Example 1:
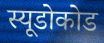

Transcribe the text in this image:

स्यूडोकोड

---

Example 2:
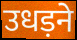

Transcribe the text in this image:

उधड़ने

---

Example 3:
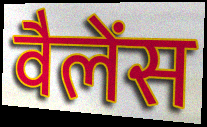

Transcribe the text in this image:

वैलेंस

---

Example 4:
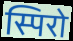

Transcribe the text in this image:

स्पिरो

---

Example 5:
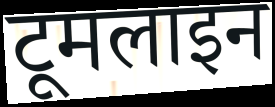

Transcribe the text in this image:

टूमलाइन